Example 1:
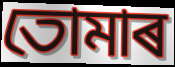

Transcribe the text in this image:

তোমাৰ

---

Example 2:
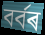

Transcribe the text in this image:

বৰ্বৰ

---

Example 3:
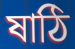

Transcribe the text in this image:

ষাঠি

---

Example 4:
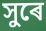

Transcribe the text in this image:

সুৰে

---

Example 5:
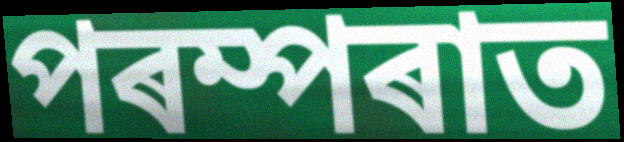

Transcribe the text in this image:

পৰম্পৰাত